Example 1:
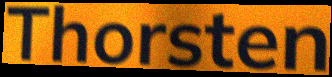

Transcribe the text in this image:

Thorsten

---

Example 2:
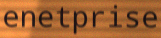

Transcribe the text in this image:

enetprise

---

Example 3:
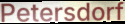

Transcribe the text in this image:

Petersdorf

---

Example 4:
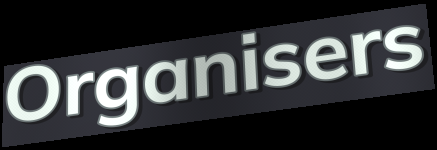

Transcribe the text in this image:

Organisers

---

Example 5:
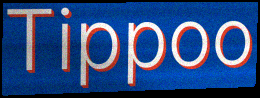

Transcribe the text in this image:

Tippoo